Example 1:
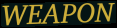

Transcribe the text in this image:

WEAPON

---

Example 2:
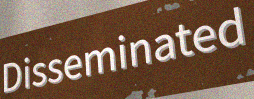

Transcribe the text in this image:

Disseminated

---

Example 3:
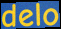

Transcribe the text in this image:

delo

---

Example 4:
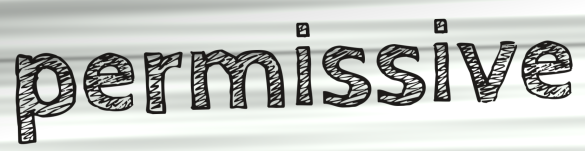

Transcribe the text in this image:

permissive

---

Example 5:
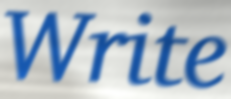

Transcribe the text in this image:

Write